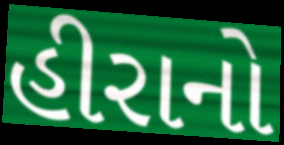
હીરાનો